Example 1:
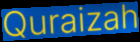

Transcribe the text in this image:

Quraizah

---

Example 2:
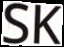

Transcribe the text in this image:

SK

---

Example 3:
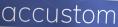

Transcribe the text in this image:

accustom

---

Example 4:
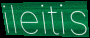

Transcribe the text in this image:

ileitis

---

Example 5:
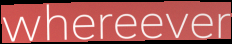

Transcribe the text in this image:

whereever